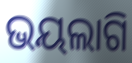
ଭୟଲାଗି